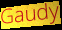
Gaudy